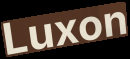
Luxon